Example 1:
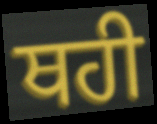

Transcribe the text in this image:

ਥਹੀ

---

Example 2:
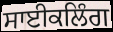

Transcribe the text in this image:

ਸਾਈਕਲਿੰਗ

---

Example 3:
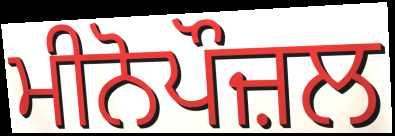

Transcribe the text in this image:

ਮੀਨੋਪੌਜ਼ਲ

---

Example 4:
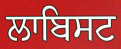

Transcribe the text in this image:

ਲਾਬਿਸਟ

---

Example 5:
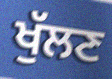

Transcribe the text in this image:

ਖੁੱਲਣ